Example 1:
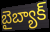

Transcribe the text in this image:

బైబ్యాక్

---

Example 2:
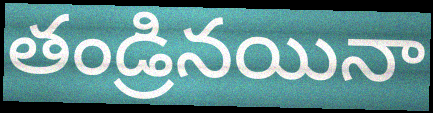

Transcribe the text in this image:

తండ్రినయినా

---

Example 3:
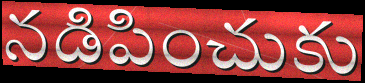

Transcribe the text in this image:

నడిపించుకు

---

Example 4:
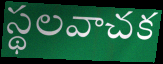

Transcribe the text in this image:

స్థలవాచక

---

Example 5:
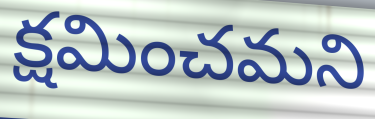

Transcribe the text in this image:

క్షమించమని